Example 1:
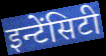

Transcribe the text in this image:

इन्टेंसिटी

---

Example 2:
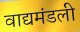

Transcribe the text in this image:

वाद्यमंडली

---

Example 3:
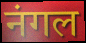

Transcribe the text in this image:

नंगल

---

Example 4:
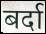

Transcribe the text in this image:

बर्दा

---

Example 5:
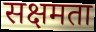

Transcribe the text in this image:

सक्षमता